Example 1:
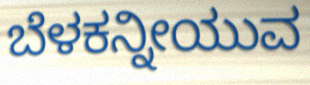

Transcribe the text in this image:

ಬೆಳಕನ್ನೀಯುವ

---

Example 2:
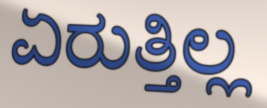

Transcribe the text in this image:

ಏರುತ್ತಿಲ್ಲ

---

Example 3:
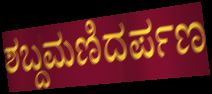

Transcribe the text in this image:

ಶಬ್ದಮಣಿದರ್ಪಣ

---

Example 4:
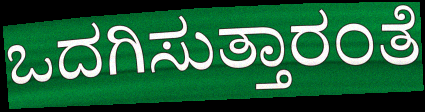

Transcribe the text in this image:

ಒದಗಿಸುತ್ತಾರಂತೆ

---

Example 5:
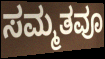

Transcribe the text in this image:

ಸಮ್ಮತವೂ